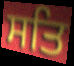
ਸਤਿ